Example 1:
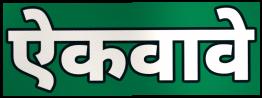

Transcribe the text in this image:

ऐकवावे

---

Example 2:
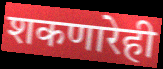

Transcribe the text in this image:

शकणारेही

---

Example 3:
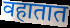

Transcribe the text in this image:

वहातात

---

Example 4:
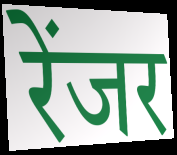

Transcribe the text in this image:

रेंजर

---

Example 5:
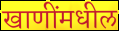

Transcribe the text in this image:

खाणींमधील